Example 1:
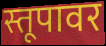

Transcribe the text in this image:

स्तूपावर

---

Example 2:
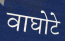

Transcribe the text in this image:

वाघोटे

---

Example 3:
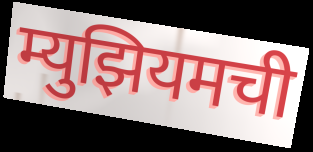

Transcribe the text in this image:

म्युझियमची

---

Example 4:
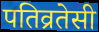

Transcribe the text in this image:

पतिव्रतेसी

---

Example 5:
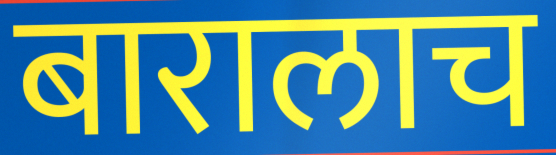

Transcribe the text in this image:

बारालाच